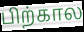
பிற்கால